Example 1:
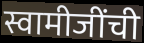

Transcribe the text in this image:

स्वामीजींची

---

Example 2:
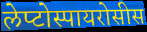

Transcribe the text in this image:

लेप्टोस्पायरोसीस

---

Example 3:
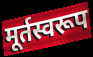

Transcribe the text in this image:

मूर्तस्वरूप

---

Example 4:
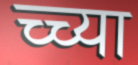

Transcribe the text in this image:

च्च्या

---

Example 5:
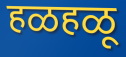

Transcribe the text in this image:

हळहळू